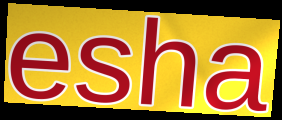
esha